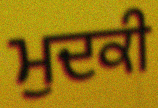
ਮੁਦਕੀ